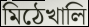
মিঠেখালি